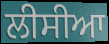
ਲੀਸੀਆ